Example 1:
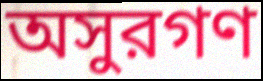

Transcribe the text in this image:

অসুরগণ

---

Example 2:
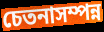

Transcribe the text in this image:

চেতনাসম্পন্ন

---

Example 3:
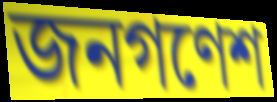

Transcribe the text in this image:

জনগণেশ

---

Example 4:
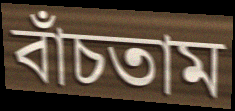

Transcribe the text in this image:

বাঁচতাম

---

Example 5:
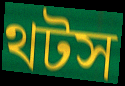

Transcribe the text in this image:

থটস